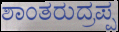
ಶಾಂತರುದ್ರಪ್ಪ